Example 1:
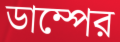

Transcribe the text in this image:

ডাম্পের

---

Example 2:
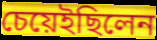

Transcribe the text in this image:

চেয়েইছিলেন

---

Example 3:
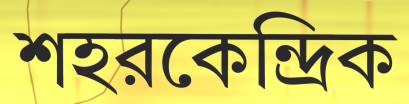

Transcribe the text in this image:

শহরকেন্দ্রিক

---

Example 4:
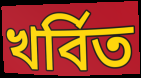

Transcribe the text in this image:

খর্বিত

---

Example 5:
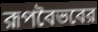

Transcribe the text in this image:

রূপবৈভবের